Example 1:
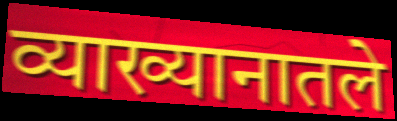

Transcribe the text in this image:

व्याख्यानातले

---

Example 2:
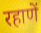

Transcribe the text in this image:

रहाणें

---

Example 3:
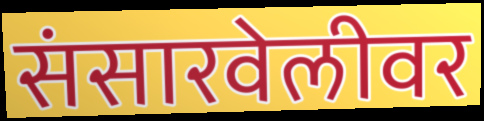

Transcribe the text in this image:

संसारवेलीवर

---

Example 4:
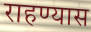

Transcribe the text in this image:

राहण्यास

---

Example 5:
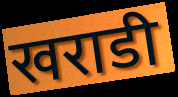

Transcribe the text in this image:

खराडी